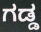
ಗಡ್ಡ